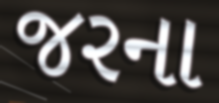
જરના